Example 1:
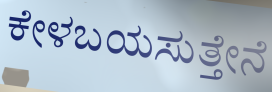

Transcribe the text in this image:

ಕೇಳಬಯಸುತ್ತೇನೆ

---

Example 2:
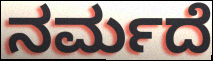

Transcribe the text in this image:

ನರ್ಮದೆ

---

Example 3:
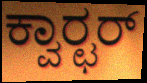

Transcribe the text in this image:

ಕ್ವಾರ‍್ಟರ್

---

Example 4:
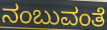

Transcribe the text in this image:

ನಂಬುವಂತೆ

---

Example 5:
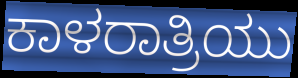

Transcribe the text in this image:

ಕಾಳರಾತ್ರಿಯು